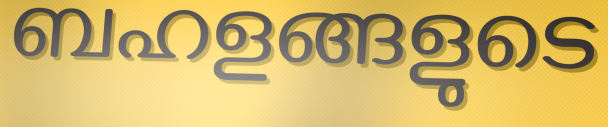
ബഹളങ്ങളുടെ